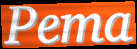
Pema